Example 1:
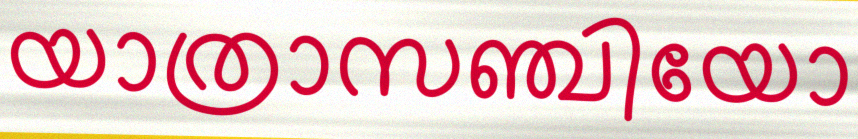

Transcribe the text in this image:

യാത്രാസഞ്ചിയോ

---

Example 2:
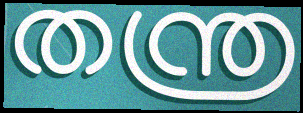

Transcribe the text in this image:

തന്ത്ര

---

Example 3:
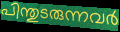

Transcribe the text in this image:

പിന്തുടരുന്നവർ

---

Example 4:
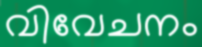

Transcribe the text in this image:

വിവേചനം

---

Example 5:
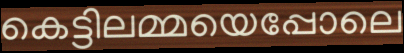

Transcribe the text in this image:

കെട്ടിലമ്മയെപ്പോലെ